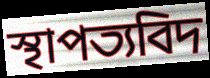
স্থাপত্যবিদ